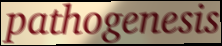
pathogenesis